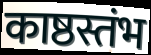
काष्ठस्तंभ